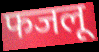
फजलू